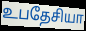
உபதேசியா